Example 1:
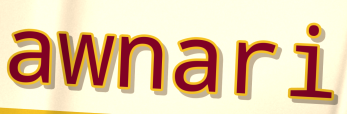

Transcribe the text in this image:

awnari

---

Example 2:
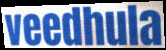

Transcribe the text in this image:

veedhula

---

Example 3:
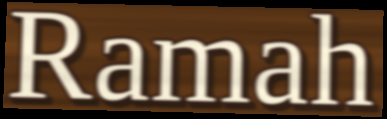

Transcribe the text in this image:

Ramah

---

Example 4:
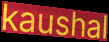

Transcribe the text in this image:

kaushal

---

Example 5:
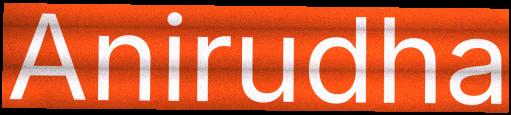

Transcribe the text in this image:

Anirudha